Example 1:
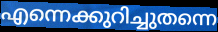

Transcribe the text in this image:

എന്നെക്കുറിച്ചുതന്നെ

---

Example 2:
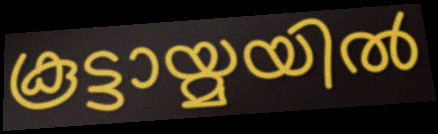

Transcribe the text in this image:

കൂട്ടായ്മയിൽ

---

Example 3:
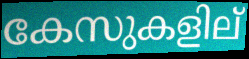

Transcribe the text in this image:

കേസുകളില്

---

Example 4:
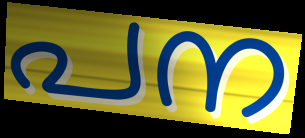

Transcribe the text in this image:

പന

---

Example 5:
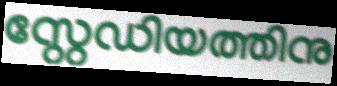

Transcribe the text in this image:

സ്റ്റേഡിയത്തിനു